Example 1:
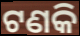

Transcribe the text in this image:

ଟଣକି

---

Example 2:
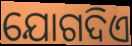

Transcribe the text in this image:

ଯୋଗଦିଏ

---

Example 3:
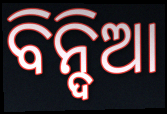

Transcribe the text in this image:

ବିନ୍ଦିଆ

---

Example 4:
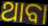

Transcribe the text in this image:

ଥାବା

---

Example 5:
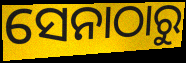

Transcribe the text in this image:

ସେନାଠାରୁ